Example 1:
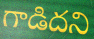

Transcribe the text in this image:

గాడిదని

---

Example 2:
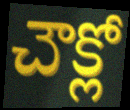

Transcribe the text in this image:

చౌక్లో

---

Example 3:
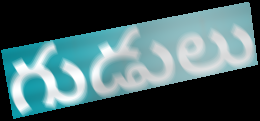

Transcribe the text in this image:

గుడులు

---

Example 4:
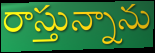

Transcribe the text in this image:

రాస్తున్నాను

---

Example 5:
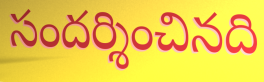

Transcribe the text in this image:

సందర్శించినది